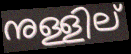
നുള്ളില്